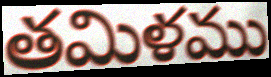
తమిళము